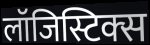
लॉजिस्टिक्‍स